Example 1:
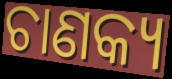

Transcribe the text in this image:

ଚାଣକ୍ଯ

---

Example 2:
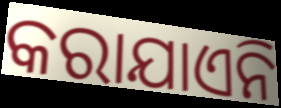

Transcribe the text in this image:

କରାଯାଏନି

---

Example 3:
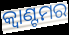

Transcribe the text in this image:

କ୍ୱାଣ୍ଟମର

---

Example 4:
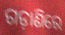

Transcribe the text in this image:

ଗଡ଼ାଣିରେ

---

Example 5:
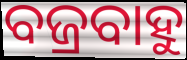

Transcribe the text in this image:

ବଜ୍ରବାହୁ